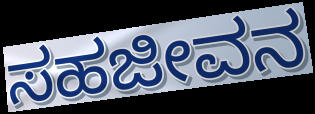
ಸಹಜೀವನ